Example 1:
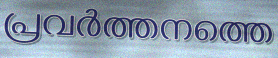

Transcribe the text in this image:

പ്രവർത്തനത്തെ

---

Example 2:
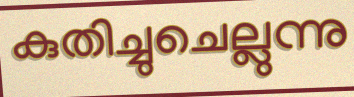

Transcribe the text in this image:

കുതിച്ചുചെല്ലുന്നു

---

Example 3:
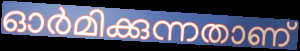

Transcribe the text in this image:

ഓർമിക്കുന്നതാണ്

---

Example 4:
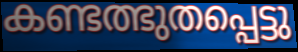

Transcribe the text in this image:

കണ്ടത്ഭുതപ്പെട്ടു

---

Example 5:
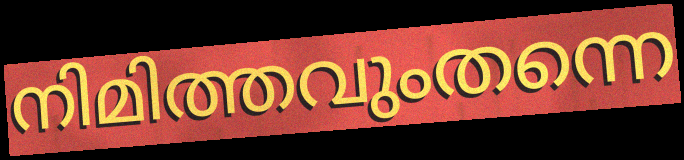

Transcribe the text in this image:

നിമിത്തവുംതന്നെ